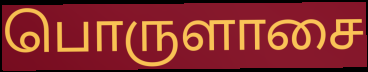
பொருளாசை